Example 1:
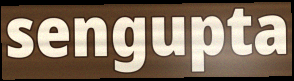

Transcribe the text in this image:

sengupta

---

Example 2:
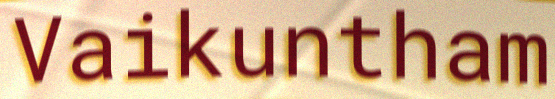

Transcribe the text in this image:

Vaikuntham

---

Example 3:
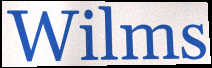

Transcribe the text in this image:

Wilms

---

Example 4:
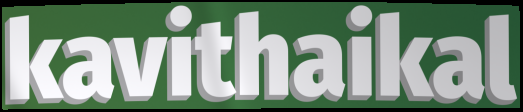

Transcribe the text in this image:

kavithaikal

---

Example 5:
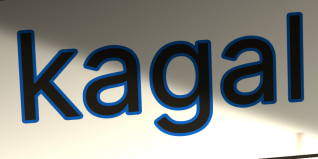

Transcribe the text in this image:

kagal